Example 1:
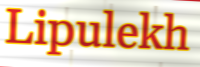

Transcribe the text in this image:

Lipulekh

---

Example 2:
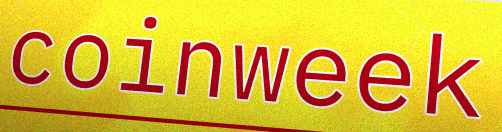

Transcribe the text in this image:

coinweek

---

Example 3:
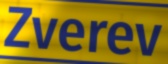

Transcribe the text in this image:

Zverev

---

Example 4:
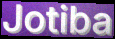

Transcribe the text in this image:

Jotiba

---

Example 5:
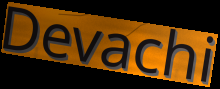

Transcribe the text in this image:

Devachi